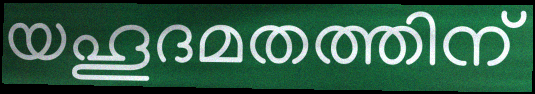
യഹൂദമതത്തിന്